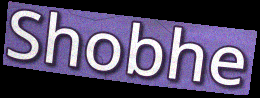
Shobhe